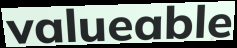
valueable